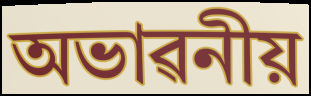
অভাৱনীয়